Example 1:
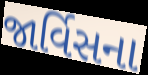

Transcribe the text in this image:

જાર્વિસના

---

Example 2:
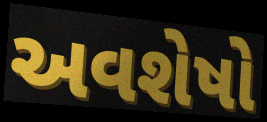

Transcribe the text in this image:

અવશેષો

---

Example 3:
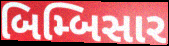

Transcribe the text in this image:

બિમ્બિસાર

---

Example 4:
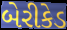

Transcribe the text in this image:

બેરીકેડ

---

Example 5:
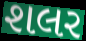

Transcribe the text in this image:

શલર